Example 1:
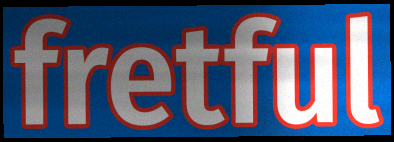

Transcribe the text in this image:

fretful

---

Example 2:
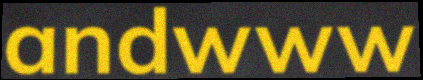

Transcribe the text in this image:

andwww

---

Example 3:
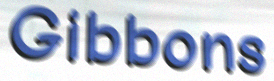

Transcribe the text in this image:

Gibbons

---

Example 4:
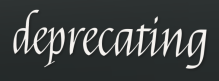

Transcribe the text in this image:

deprecating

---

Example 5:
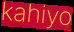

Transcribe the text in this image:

kahiyo